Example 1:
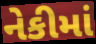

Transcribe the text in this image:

નેકીમાં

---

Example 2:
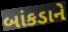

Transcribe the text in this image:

બાંકડાને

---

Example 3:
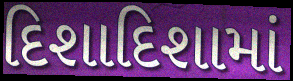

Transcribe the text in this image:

દિશાદિશામાં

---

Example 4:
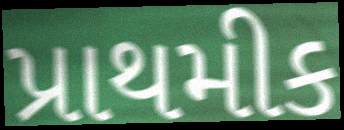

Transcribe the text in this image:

પ્રાથમીક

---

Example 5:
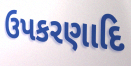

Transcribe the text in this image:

ઉપકરણાદિ